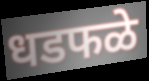
धडफळे